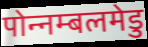
पोन्नम्बलमेडु